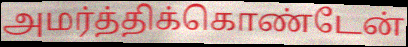
அமர்த்திக்கொண்டேன்